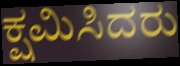
ಕ್ಷಮಿಸಿದರು